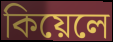
কিয়েলে